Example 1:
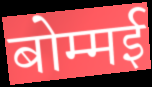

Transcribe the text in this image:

बोम्मई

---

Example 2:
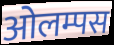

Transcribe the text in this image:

ओलम्पस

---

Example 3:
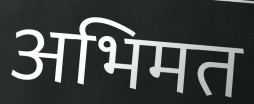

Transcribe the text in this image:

अभिमत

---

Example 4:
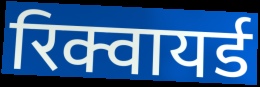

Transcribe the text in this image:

रिक्वायर्ड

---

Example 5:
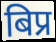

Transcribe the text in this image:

बिप्र